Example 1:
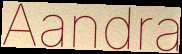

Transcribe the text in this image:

Aandra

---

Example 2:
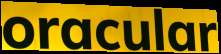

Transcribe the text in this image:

oracular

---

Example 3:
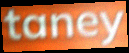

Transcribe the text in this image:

taney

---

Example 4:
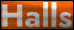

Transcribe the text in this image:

Halls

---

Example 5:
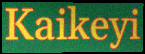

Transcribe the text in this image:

Kaikeyi